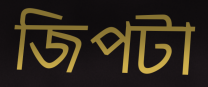
জিপটা